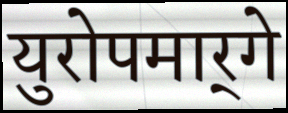
युरोपमार्गे